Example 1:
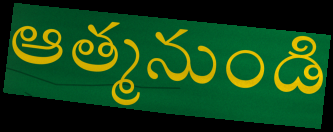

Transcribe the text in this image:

ఆత్మనుండి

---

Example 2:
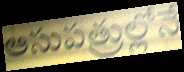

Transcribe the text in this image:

ఆసుపత్రుల్లోనే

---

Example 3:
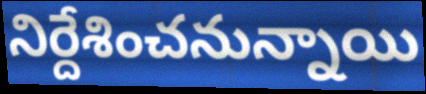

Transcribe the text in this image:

నిర్దేశించనున్నాయి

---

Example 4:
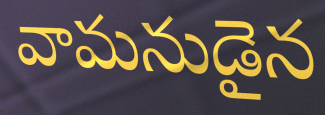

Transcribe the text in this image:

వామనుడైన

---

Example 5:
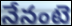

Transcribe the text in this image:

నేనంటె